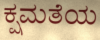
ಕ್ಷಮತೆಯ